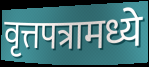
वृत्तपत्रामध्ये